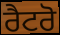
ਰੈਟਰੋ